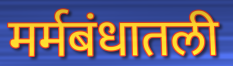
मर्मबंधातली